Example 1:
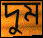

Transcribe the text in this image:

দুম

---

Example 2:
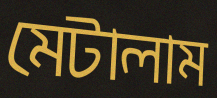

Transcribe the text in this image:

মেটালাম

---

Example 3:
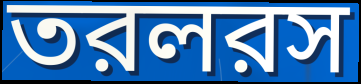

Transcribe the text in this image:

তরলরস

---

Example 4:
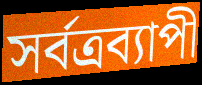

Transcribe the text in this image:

সর্বত্রব্যাপী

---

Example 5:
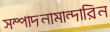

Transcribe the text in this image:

সম্পাদনামান্দারিন